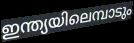
ഇന്ത്യയിലെമ്പാടും